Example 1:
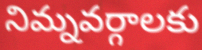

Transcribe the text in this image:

నిమ్నవర్గాలకు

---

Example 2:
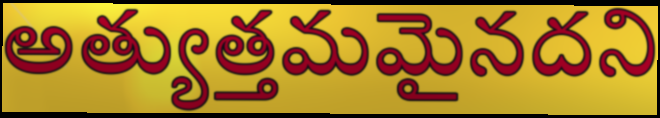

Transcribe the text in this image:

అత్యుత్తమమైనదని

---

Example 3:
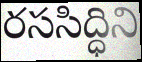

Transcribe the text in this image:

రససిద్ధిని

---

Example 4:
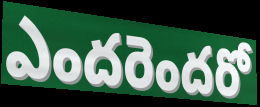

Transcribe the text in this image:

ఎందరెందరో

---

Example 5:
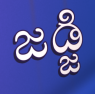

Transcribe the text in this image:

జడ్జి